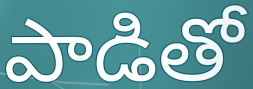
పాడితో